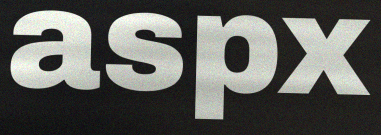
aspx